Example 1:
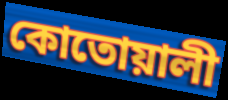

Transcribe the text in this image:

কোতোয়ালী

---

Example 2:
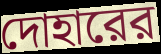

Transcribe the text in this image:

দোহারের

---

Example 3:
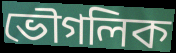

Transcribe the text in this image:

ভৌগলিক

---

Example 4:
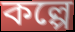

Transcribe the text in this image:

কল্পে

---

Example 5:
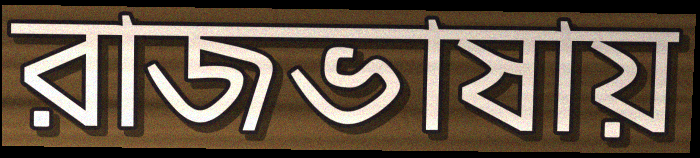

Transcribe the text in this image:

রাজভাষায়